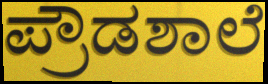
ಪ್ರೌಡಶಾಲೆ